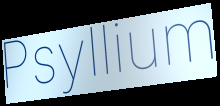
Psyllium